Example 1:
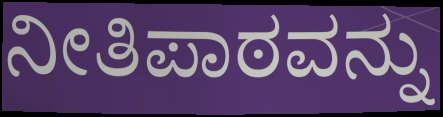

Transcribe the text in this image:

ನೀತಿಪಾಠವನ್ನು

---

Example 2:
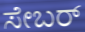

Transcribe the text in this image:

ಸೇಬರ್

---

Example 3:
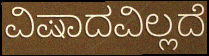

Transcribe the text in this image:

ವಿಷಾದವಿಲ್ಲದೆ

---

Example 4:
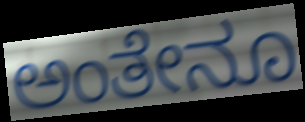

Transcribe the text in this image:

ಅಂತೇನೂ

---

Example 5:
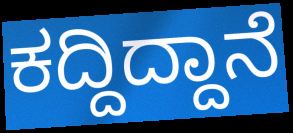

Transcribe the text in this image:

ಕದ್ದಿದ್ದಾನೆ